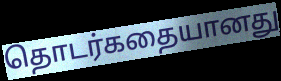
தொடர்கதையானது